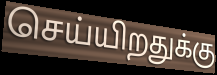
செய்யிறதுக்கு